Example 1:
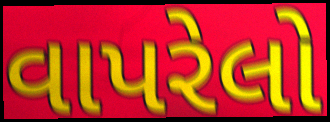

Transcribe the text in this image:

વાપરેલો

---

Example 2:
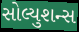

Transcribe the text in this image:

સોલ્યુશન્સ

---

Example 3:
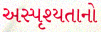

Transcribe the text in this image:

અસ્પૃશ્યતાનો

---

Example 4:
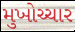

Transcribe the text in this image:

મુખોચ્ચાર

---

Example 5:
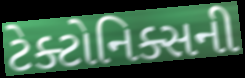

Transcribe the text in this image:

ટેક્ટોનિક્સની